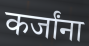
कर्जांना